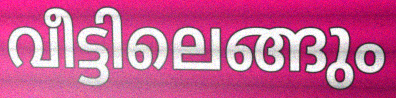
വീട്ടിലെങ്ങും